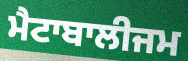
ਮੈਟਾਬਾਲੀਜਮ